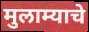
मुलाम्याचे